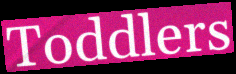
Toddlers